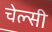
चेल्सी